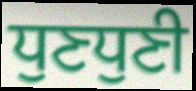
ਧੁਣਧੁਣੀ